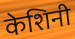
केशिनी